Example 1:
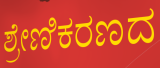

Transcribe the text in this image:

ಶ್ರೇಣಿಕರಣದ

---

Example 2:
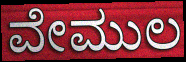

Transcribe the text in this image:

ವೇಮುಲ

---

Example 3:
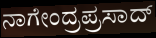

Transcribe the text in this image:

ನಾಗೇಂದ್ರಪ್ರಸಾದ್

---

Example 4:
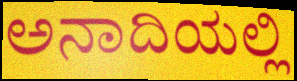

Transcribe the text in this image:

ಅನಾದಿಯಲ್ಲಿ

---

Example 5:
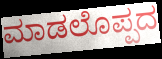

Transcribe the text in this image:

ಮಾಡಲೊಪ್ಪದ